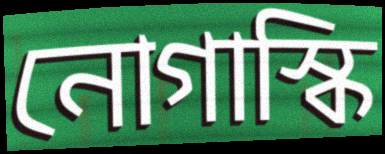
নোগাস্কি